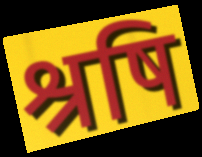
श्रषि